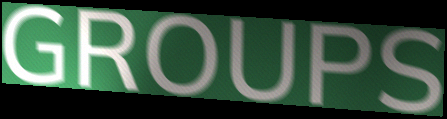
GROUPS